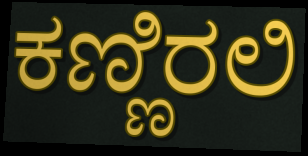
ಕಣ್ಣಿರಲಿ